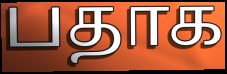
பதாக